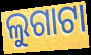
ଲୁଗାଟା